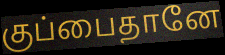
குப்பைதானே